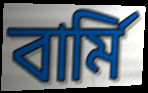
বার্মি